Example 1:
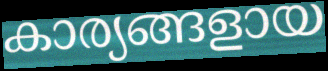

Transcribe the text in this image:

കാര്യങ്ങളായ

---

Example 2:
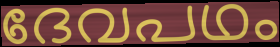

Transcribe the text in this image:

ദേവപഥം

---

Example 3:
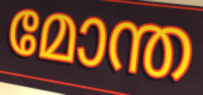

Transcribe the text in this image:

മോന്ത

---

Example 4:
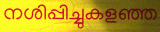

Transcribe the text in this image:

നശിപ്പിച്ചുകളഞ്ഞ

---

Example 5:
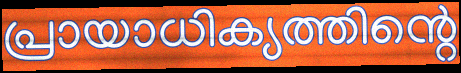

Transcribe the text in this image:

പ്രായാധിക്യത്തിന്റെ